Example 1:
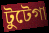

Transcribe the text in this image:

টুটেগা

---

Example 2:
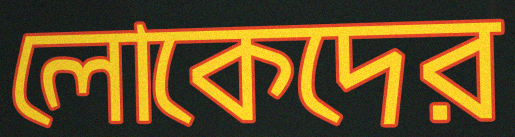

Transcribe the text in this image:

লোকেদের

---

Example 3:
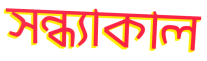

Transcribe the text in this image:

সন্ধ্যাকাল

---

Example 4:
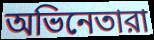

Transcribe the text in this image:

অভিনেতারা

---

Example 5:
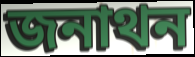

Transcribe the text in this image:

জনাথন